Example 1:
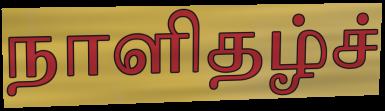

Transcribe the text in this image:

நாளிதழ்ச்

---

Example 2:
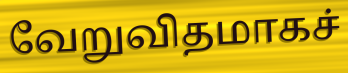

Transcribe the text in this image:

வேறுவிதமாகச்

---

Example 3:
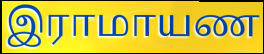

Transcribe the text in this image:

இராமாயண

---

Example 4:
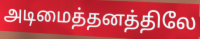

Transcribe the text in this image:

அடிமைத்தனத்திலே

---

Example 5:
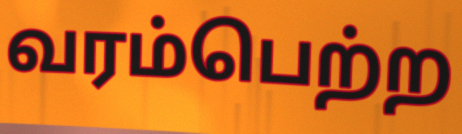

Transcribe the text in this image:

வரம்பெற்ற